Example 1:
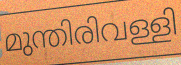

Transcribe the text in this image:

മുന്തിരിവള്ളി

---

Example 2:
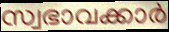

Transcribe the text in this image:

സ്വഭാവക്കാർ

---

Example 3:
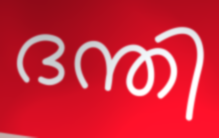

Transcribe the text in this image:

ദന്തി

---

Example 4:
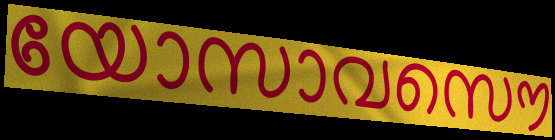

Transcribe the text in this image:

യോസാവസൌ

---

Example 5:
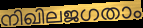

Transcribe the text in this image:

നിഖിലജഗതാം